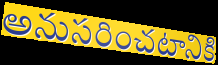
అనుసరించటానికి